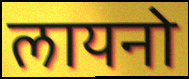
लायनो